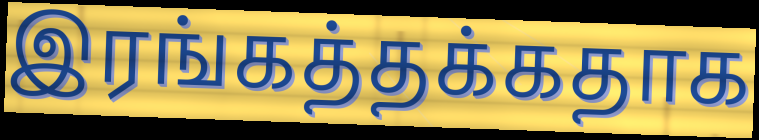
இரங்கத்தக்கதாக